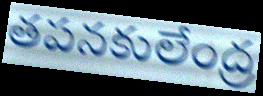
తపనకులేంద్ర